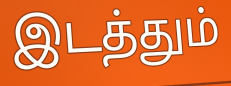
இடத்தும்